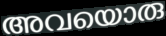
അവയൊരു